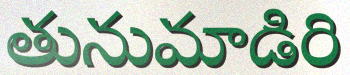
తునుమాడిరి